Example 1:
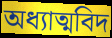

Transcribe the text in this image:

অধ্যাত্মবিদ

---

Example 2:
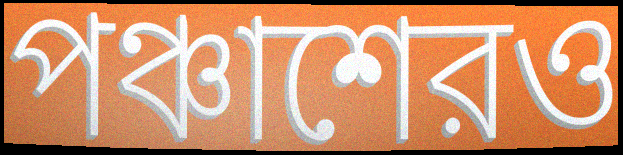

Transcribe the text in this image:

পঞ্চাশেরও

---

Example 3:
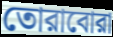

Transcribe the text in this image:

তোরাবোরা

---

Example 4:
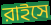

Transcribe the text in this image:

রাইসে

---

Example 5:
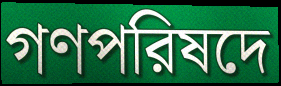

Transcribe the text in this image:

গণপরিষদে